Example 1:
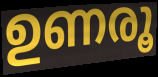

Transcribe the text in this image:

ഉണരൂ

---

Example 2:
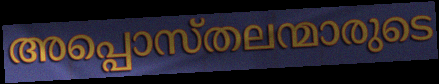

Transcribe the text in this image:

അപ്പൊസ്തലന്മാരുടെ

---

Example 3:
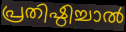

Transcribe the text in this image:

പ്രതിഷ്ഠിച്ചാൽ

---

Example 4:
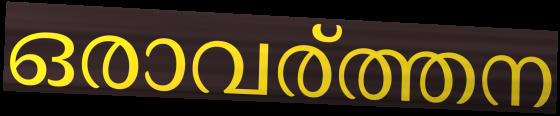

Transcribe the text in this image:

ഒരാവര്ത്തന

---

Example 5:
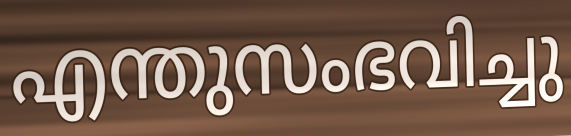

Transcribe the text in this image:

എന്തുസംഭവിച്ചു